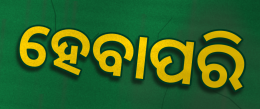
ହେବାପରି